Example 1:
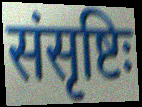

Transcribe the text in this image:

संसृष्टिः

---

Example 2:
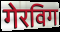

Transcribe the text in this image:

गेरविग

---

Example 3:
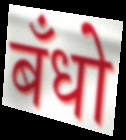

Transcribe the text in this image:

बँधो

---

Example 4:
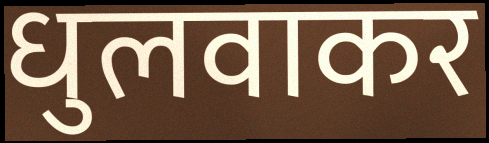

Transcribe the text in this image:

धुलवाकर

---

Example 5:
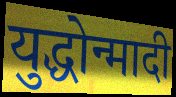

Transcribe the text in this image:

युद्धोन्मादी